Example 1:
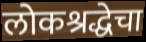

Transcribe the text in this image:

लोकश्रद्धेचा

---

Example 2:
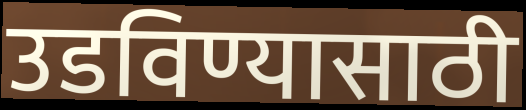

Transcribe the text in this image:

उडविण्यासाठी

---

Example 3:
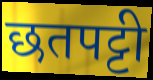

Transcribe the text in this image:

छतपट्टी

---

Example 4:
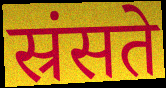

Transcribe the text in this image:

स्रंसते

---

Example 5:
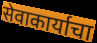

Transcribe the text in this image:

सेवाकार्याचा